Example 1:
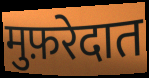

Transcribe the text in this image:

मुफ़रेदात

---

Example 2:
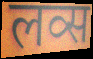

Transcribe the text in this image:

लव्स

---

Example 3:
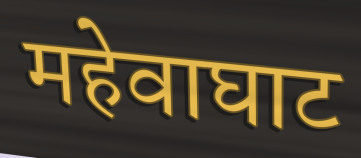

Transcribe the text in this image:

महेवाघाट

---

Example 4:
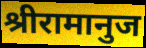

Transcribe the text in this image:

श्रीरामानुज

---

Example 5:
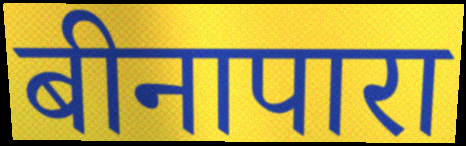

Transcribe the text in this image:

बीनापारा